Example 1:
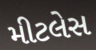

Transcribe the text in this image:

મીટલેસ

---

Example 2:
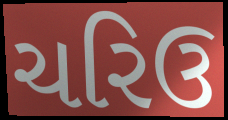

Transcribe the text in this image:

ચરિઉ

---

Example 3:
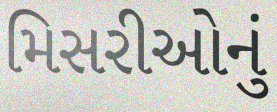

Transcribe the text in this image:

મિસરીઓનું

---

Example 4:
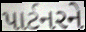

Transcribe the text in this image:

પાર્ટનરને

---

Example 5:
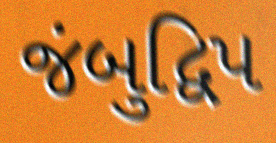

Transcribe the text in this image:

જંબુદ્વિપ